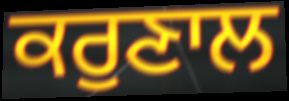
ਕਰੁਣਾਲ